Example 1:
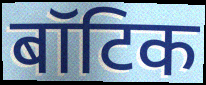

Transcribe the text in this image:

बॉटिक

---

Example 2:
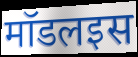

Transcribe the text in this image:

मॉडलइस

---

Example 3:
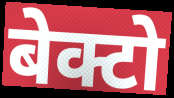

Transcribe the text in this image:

बेक्टो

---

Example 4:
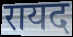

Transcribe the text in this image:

रायद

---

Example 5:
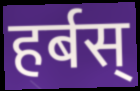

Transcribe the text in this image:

हर्बस्